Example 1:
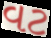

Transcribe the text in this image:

વટ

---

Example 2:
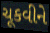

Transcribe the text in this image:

ચૂકવીને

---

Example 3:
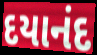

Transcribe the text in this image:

દયાનંદ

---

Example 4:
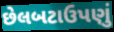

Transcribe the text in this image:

છેલબટાઉપણું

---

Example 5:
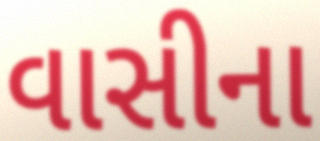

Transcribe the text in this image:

વાસીના